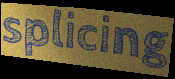
splicing